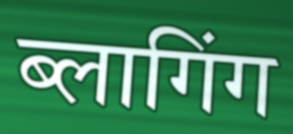
ब्लागिंग